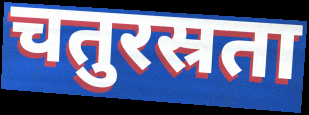
चतुरस्रता